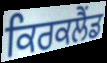
ਕਿਰਕਲੈਂਡ